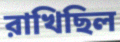
রাখিছিল